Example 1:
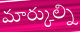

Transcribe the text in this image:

మార్కుల్ని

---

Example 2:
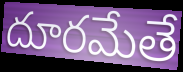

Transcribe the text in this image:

దూరమేతే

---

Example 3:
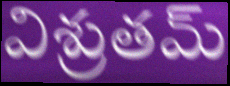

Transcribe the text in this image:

విశ్రుతమ్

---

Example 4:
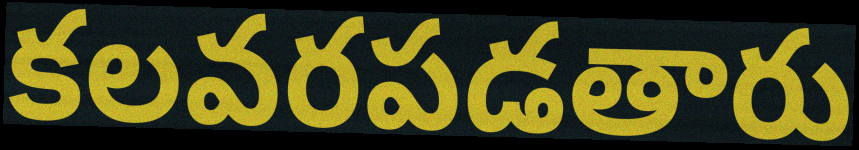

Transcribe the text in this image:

కలవరపడతారు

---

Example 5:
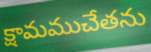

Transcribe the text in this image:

క్షామముచేతను